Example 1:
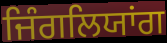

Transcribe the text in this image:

ਜਿੰਗਲਿਯਾਂਗ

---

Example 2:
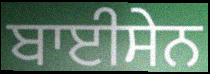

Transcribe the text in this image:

ਬਾਈਸੇਨ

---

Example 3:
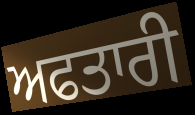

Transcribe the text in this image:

ਅਫਤਾਰੀ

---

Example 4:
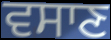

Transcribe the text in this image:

ਵਸਾਣ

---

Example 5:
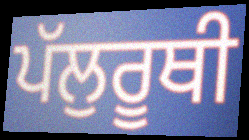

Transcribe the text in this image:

ਪੱਲੁਰੂਥੀ